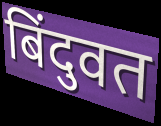
बिंदुवत